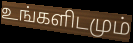
உங்களிடமும்